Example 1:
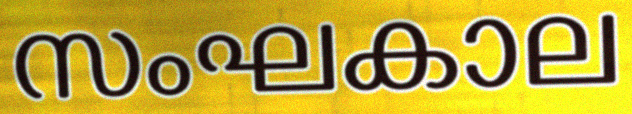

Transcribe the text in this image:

സംഘകാല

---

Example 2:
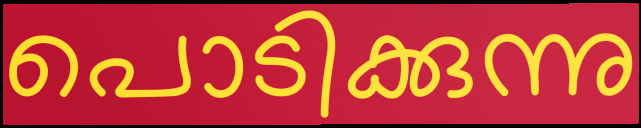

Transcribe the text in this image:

പൊടിക്കുന്നു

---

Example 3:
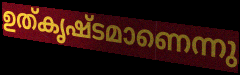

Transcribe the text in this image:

ഉത്കൃഷ്ടമാണെന്നു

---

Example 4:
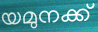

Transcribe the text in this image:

യമുനക്ക്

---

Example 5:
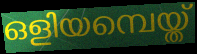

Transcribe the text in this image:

ഒളിയമ്പെയ്ത്